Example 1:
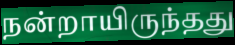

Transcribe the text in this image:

நன்றாயிருந்தது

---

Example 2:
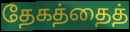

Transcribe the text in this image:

தேகத்தைத்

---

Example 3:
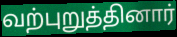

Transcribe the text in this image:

வற்புறுத்தினார்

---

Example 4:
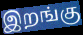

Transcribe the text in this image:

இறங்கு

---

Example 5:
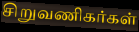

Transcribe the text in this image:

சிறுவணிகர்கள்